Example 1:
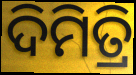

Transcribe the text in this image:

ଦିମିତ୍ରି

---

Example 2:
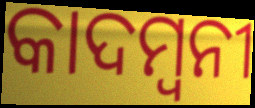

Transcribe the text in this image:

କାଦମ୍ୱନୀ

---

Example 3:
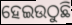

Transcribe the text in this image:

ହେଇଉଠୁଛି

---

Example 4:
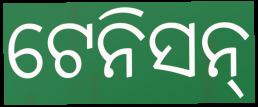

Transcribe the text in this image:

ଟେନିସନ୍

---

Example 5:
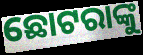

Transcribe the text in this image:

ଛୋଟରାଙ୍କୁ